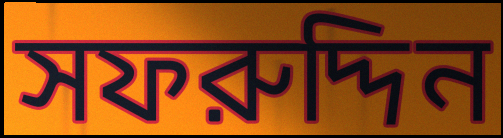
সফরুদ্দিন